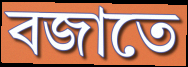
বজাতে